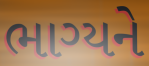
ભાગ્યને